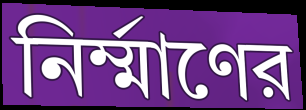
নির্ম্মাণের